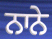
ਨਾਨੇ